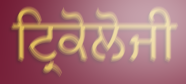
ਟ੍ਰਿਕੋਲੋਜੀ